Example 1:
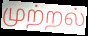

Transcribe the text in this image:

முற்றல்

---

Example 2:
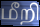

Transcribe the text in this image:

மீறி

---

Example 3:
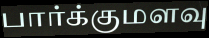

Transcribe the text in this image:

பார்க்குமளவு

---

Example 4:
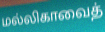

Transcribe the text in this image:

மல்லிகாவைத்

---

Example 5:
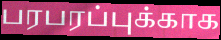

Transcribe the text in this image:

பரபரப்புக்காக